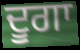
ਦੂਗਾ